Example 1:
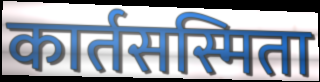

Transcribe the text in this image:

कार्तसस्मिता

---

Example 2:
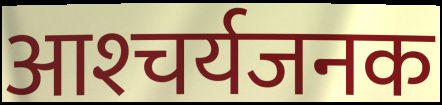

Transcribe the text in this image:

आश्‍चर्यजनक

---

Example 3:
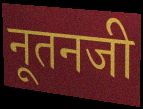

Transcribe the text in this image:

नूतनजी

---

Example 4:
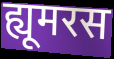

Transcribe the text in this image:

ह्यूमरस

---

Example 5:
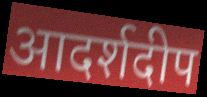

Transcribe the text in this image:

आदर्शदीप